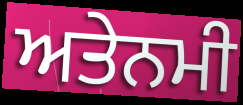
ਅਤੇਨਮੀ